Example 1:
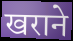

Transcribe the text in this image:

खराने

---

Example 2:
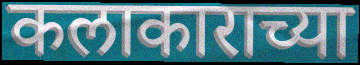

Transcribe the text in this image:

कलाकाराच्या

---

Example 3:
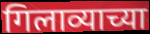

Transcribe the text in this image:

गिलाव्याच्या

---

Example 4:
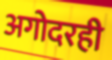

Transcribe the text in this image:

अगोदरही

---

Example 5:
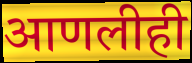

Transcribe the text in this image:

आणलीही